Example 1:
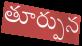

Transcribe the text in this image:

తూర్పున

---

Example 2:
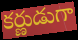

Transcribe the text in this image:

కర్ణుడుగా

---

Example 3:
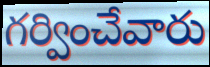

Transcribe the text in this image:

గర్వించేవారు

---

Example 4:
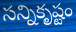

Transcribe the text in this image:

సన్నికృష్టం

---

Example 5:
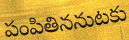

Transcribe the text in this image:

పంపితిననుటకు